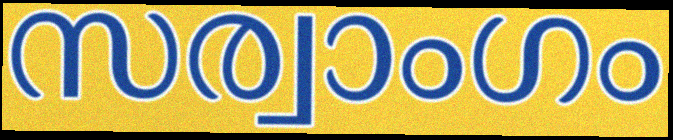
സര്വാംഗം